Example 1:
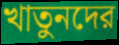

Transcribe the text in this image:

খাতুনদের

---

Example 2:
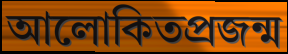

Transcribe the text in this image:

আলোকিতপ্রজন্ম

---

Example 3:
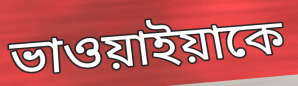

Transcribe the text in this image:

ভাওয়াইয়াকে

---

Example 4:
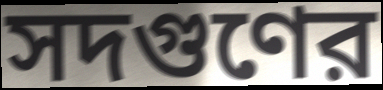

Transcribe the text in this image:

সদগুণের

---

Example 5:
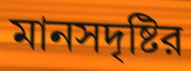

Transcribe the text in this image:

মানসদৃষ্টির